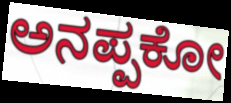
ಅನಪ್ಪಕೋ